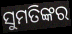
ସୁମତିଙ୍କର